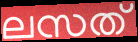
ലസത്